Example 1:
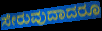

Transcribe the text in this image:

ಸೇರುವುದಾದರೂ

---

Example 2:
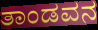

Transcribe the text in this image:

ತಾಂಡವನ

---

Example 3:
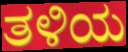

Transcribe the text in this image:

ತಳಿಯ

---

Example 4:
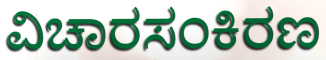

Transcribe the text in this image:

ವಿಚಾರಸಂಕಿರಣ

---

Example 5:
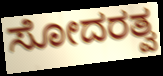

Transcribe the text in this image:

ಸೋದರತ್ವ